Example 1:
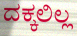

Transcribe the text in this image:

ದಕ್ಕಲಿಲ್ಲ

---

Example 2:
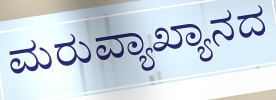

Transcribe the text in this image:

ಮರುವ್ಯಾಖ್ಯಾನದ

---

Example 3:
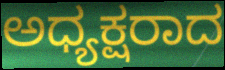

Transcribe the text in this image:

ಅಧ್ಯಕ್ಷರಾದ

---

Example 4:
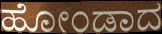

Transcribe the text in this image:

ಹೋಂಡಾದ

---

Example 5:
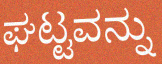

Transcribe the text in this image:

ಘಟ್ಟವನ್ನು